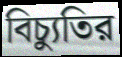
বিচ্যুতির